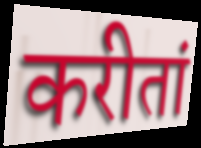
करीतां